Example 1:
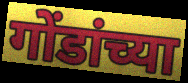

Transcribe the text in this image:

गोंडांच्या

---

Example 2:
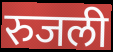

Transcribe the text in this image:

रुजली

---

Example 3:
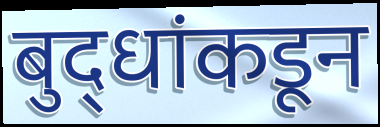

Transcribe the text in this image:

बुद्धांकडून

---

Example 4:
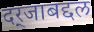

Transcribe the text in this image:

दर्जाबद्दल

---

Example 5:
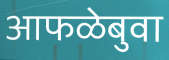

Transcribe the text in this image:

आफळेबुवा